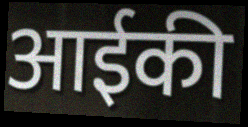
आईकी